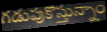
గడుపుకొస్తున్నాం